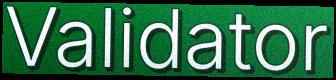
Validator